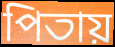
পিতায়